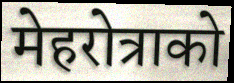
मेहरोत्राको